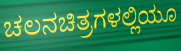
ಚಲನಚಿತ್ರಗಳಲ್ಲಿಯೂ